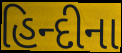
હિન્દીના